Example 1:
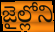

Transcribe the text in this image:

జైల్లోని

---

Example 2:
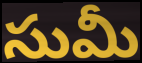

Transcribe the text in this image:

సుమీ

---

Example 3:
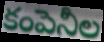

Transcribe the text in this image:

కంపెనీల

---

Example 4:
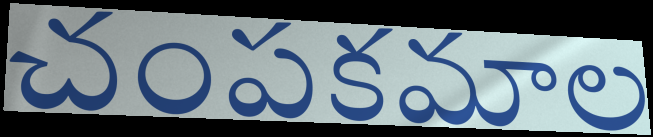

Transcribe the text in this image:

చంపకమాల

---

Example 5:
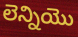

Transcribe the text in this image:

లెన్నియొ